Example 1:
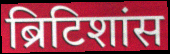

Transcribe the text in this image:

ब्रिटिशांस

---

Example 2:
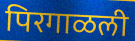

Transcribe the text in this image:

पिरगाळली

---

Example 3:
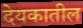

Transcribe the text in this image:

देयकातील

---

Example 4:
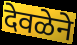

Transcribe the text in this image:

देवळेने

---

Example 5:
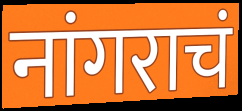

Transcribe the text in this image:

नांगराचं